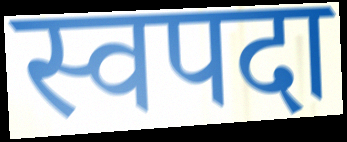
स्वपदा